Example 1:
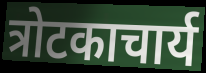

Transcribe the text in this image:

त्रोटकाचार्य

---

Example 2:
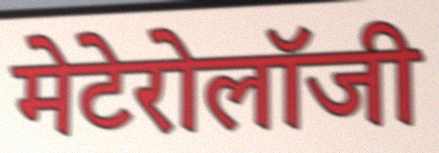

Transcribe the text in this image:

मेटेरोलॉजी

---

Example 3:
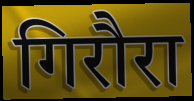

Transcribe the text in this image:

गिरौरा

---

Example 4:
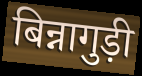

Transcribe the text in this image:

बिन्नागुड़ी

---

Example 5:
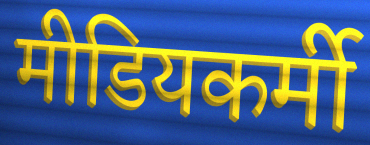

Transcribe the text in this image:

मीडियकर्मी